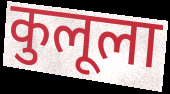
कुलूला